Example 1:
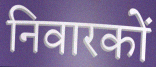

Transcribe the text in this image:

निवारकों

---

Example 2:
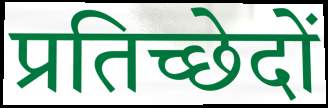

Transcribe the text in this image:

प्रतिच्छेदों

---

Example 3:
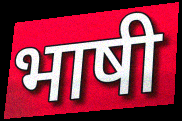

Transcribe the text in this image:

भाषी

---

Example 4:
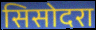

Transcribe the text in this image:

सिसोदरा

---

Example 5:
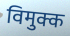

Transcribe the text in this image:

विमुक्क